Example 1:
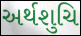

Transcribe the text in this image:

અર્થશુચિ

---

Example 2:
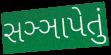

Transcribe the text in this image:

સઞ્ઞાપેતું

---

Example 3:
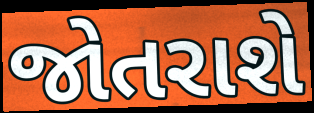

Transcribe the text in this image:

જોતરાશે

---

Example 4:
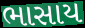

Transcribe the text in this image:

ભાસાય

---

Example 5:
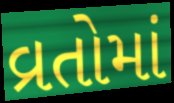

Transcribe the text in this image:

વ્રતોમાં